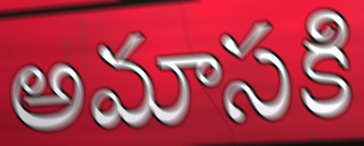
అమాసకి